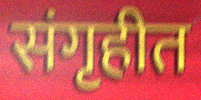
संगृहीत